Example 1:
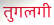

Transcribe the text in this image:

तुगलगी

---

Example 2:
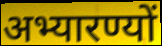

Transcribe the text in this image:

अभ्यारण्यों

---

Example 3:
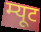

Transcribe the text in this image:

म्यूट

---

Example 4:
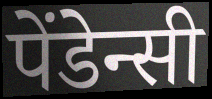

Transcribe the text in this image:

पेंडेन्सी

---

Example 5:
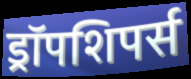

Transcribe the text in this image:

ड्रॉपशिपर्स